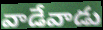
వాడేవాడు